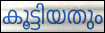
കൂട്ടിയതും